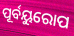
ପୂର୍ବୟୁରୋପ